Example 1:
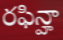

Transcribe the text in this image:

రఫిన్హా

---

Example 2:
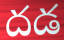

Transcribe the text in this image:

దడ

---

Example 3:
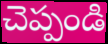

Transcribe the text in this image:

చెప్పండి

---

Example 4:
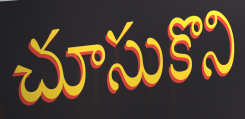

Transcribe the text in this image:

చూసుకొని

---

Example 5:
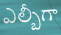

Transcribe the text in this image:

ఎల్బీగా